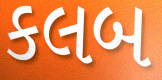
કલબ